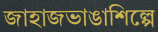
জাহাজভাঙাশিল্পে